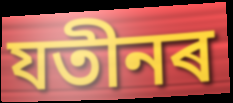
যতীনৰ